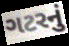
ગટરનું